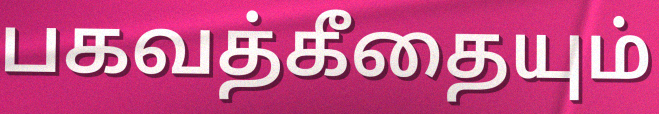
பகவத்கீதையும்